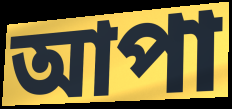
আপা